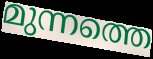
മുന്നത്തെ